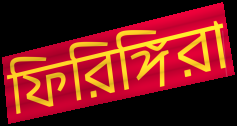
ফিরিঙ্গিরা